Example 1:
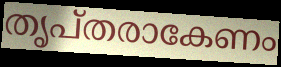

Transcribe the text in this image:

തൃപ്തരാകേണം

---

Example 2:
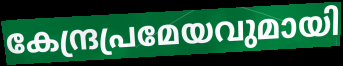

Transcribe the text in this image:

കേന്ദ്രപ്രമേയവുമായി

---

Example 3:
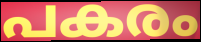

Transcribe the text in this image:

പകരം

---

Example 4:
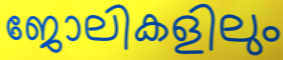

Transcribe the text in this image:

ജോലികളിലും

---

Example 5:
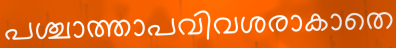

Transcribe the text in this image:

പശ്ചാത്താപവിവശരാകാതെ